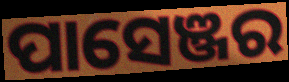
ପାସେଞ୍ଜର